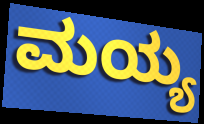
ಮಯ್ಯ